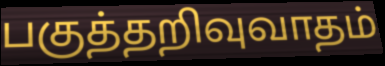
பகுத்தறிவுவாதம்